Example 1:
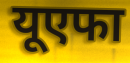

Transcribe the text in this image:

यूएफा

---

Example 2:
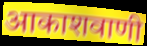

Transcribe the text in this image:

आकाशवाणी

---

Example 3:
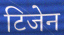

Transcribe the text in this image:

टिजेन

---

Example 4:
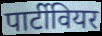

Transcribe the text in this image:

पार्टीवियर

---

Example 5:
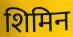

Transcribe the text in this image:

शिमिन